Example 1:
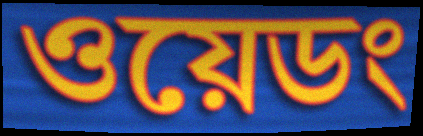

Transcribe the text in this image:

ওয়েডং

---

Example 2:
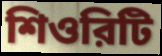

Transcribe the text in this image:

শিওরিটি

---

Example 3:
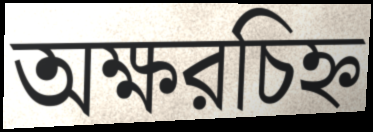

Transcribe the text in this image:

অক্ষরচিহ্ন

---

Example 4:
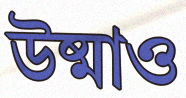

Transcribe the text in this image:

উষ্মাও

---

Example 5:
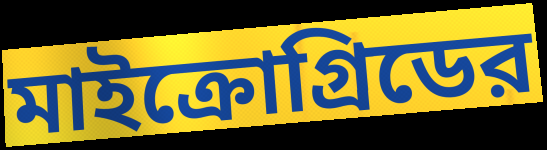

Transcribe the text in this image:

মাইক্রোগ্রিডের